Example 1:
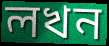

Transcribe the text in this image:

লখন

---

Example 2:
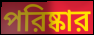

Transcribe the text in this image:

পরিষ্কার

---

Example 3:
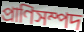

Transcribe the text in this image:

প্রাণিসম্পদ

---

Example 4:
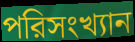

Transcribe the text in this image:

পরিসংখ্যান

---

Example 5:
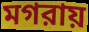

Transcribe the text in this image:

মগরায়